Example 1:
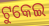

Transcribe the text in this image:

ଟୁକେଇ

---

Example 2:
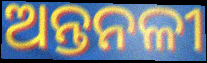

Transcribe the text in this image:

ଅନ୍ତନଳୀ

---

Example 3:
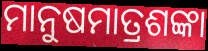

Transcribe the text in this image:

ମାନୁଷମାତ୍ରଶଙ୍କା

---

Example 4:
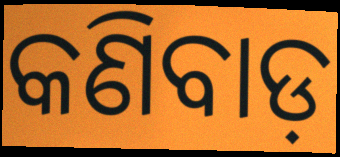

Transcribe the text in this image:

କଣିବାଡ଼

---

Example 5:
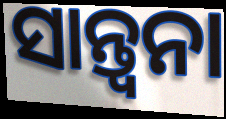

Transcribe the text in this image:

ସାନ୍ତ୍ଵନା